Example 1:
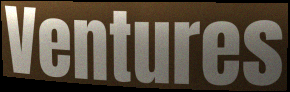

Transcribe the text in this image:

Ventures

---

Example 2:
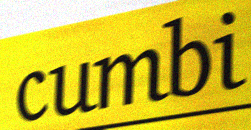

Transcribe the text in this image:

cumbi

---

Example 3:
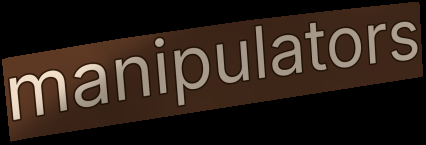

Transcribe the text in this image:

manipulators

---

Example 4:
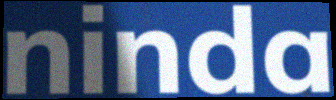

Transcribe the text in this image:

ninda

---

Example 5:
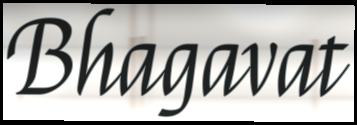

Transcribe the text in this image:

Bhagavat